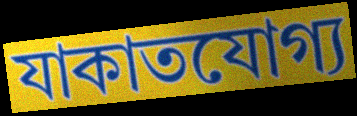
যাকাতযোগ্য